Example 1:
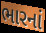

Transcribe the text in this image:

ભારનાં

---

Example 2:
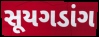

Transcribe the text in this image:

સૂયગડાંગ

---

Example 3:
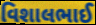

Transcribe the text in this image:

વિશાલભાઈ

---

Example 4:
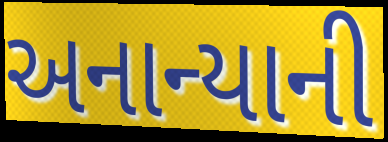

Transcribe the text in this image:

અનાન્યાની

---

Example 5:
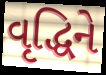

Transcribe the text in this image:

વૃદ્ધિને